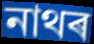
নাথৰ